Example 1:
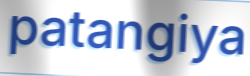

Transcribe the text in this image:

patangiya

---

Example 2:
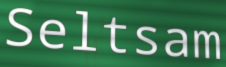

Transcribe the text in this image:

Seltsam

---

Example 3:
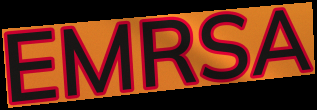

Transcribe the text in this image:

EMRSA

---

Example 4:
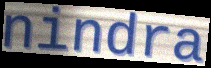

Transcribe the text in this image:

nindra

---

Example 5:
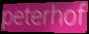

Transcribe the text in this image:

peterhof